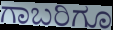
ಗಾಬರಿಗೂ